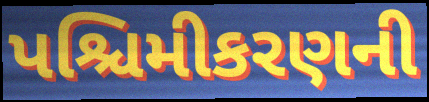
પશ્ચિમીકરણની